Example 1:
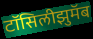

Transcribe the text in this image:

टॉसिलीझुमॅब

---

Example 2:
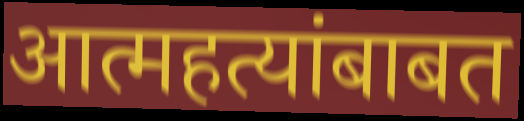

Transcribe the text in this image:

आत्महत्यांबाबत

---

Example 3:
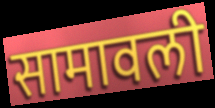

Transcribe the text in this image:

सामावली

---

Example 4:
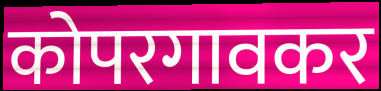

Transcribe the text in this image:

कोपरगावकर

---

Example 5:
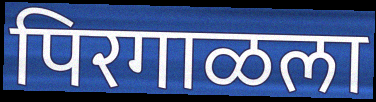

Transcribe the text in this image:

पिरगाळला